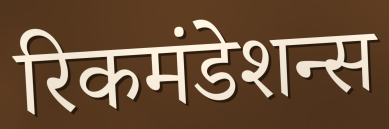
रिकमंडेशन्स